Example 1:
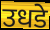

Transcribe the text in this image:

उधडे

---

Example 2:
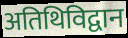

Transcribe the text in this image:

अतिथिविद्वान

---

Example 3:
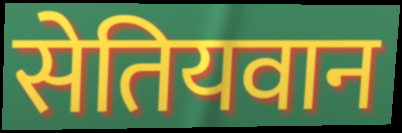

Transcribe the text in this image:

सेतियवान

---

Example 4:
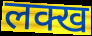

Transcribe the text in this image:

लक्ख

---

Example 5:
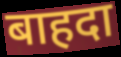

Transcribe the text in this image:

बाहदा